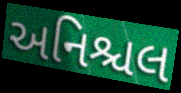
અનિશ્ચલ